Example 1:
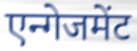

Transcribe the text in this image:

एन्गेजमेंट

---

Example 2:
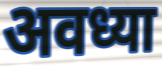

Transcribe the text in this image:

अवध्या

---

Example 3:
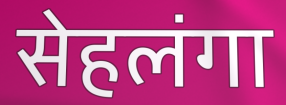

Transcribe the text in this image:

सेहलंगा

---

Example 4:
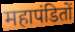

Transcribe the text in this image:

महापंडितों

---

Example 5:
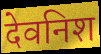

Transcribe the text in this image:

देवनिश